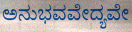
ಅನುಭವವೇದ್ಯವೇ